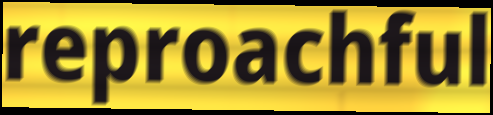
reproachful